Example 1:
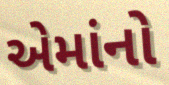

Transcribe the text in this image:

એમાંનો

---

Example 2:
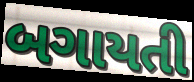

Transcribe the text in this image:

બગાયતી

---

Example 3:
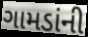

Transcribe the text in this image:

ગામડાંની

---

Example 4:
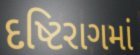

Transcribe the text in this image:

દષ્ટિરાગમાં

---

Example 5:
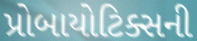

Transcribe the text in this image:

પ્રોબાયોટિક્સની